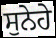
ਸੁਨੇਹੇ